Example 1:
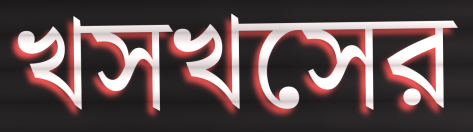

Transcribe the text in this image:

খসখসের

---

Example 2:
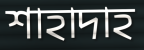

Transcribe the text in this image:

শাহাদাহ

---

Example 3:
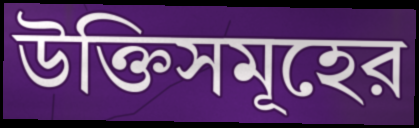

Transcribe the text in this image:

উক্তিসমূহের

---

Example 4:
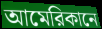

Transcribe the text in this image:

আমেরিকানে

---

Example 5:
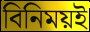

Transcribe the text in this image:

বিনিময়ই